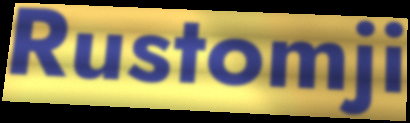
Rustomji